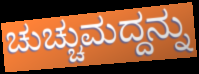
ಚುಚ್ಚುಮದ್ದನ್ನು